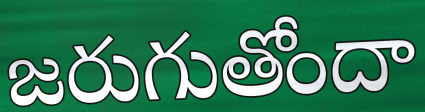
జరుగుతోందా